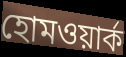
হোমওয়ার্ক